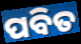
ପବିତ